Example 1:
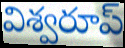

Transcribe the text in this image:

విశ్వరూప్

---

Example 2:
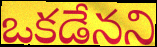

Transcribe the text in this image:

ఒకడేనని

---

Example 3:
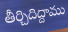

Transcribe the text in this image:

తీర్చిదిద్దాము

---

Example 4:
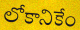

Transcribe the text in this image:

లోకానికేం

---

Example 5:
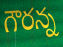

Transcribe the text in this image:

గౌరన్న